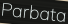
Parbata